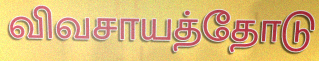
விவசாயத்தோடு